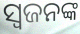
ସ୍ଵଜନଙ୍କ